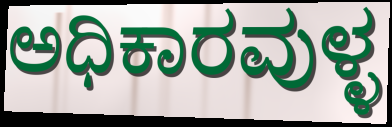
ಅಧಿಕಾರವುಳ್ಳ